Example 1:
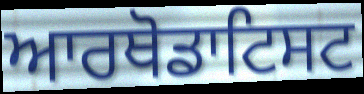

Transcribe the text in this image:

ਆਰਥੋਡਾਟਿਸਟ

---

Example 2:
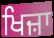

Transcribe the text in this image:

ਖਿਜ਼ਾ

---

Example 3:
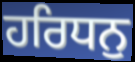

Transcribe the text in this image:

ਹਰਿਧਨੁ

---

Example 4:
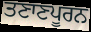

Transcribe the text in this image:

ਤਣਾਣਪੂਰਨ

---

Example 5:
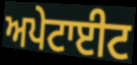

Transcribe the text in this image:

ਅਪੇਟਾਈਟ